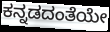
ಕನ್ನಡದಂತೆಯೇ